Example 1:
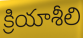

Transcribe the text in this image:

క్రియాశీలి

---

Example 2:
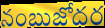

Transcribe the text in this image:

నంబుజోదర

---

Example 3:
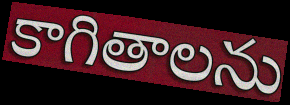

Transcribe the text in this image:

కాగితాలను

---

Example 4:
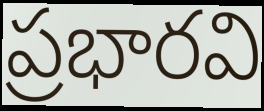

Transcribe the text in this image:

ప్రభారవి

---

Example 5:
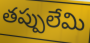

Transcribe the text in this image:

తప్పులేమి